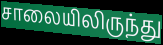
சாலையிலிருந்து